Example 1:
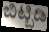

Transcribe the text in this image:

ಬಿಟ್ಬಿಡಿ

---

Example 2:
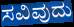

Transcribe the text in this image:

ಸವಿವುದು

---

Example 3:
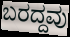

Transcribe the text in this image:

ಬರದ್ದವು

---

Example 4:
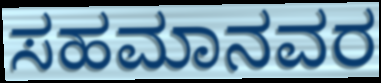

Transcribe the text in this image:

ಸಹಮಾನವರ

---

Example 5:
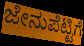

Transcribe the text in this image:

ಜೇನುಪೆಟ್ಟಿಗೆ